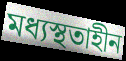
মধ্যস্থতাহীন